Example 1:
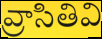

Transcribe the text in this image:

వ్రాసితివి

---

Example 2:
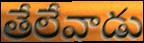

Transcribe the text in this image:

తేలేవాడు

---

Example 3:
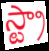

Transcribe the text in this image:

స్ట్రా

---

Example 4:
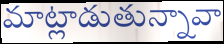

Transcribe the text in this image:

మాట్లాడుతున్నావా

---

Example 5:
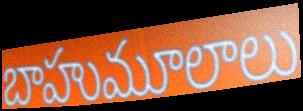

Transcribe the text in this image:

బాహుమూలాలు